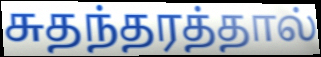
சுதந்தரத்தால்